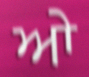
ਆੇ